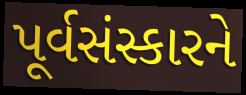
પૂર્વસંસ્કારને